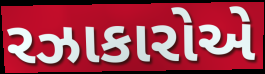
રઝાકારોએ